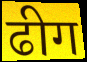
ढीग